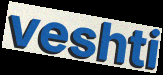
veshti